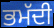
ਭਮੱਦੀ